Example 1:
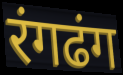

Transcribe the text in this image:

रंगढंग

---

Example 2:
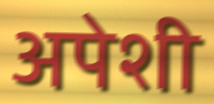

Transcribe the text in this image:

अपेशी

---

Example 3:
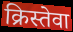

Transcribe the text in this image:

क्रिस्तेवा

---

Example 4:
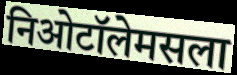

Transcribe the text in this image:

निओटॉलेमसला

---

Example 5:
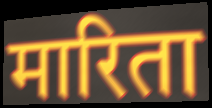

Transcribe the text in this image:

मारिता